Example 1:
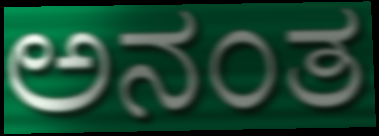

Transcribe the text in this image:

ಅನಂತ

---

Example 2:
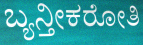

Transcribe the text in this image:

ಬ್ಯನ್ತೀಕರೋತಿ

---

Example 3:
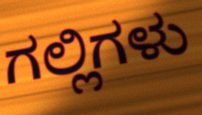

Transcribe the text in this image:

ಗಲ್ಲಿಗಳು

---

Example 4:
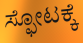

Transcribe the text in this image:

ಸ್ಫೋಟಕ್ಕೆ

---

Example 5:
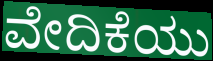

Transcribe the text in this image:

ವೇದಿಕೆಯು